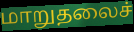
மாறுதலைச்